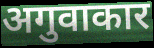
अगुवाकार